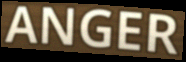
ANGER